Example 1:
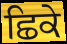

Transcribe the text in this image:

ਛਿਕੇ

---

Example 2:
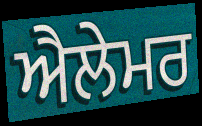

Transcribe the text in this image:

ਐਲੇਮਰ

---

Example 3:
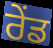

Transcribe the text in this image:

ਰੇਂਡ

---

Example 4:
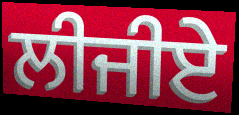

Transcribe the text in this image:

ਲੀਜੀਏ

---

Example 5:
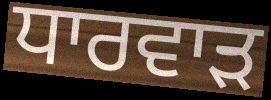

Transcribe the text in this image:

ਧਾਰਵਾੜ